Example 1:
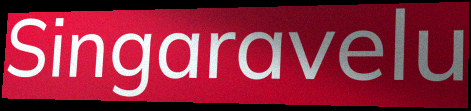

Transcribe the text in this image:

Singaravelu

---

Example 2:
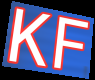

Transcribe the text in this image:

KF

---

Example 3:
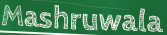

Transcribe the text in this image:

Mashruwala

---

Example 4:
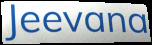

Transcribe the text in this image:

Jeevana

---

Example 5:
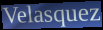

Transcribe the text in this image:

Velasquez